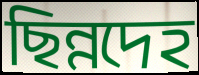
ছিন্নদেহ